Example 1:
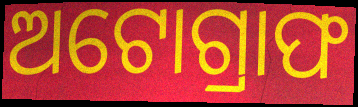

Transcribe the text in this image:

ଅଟୋଗ୍ରାଫ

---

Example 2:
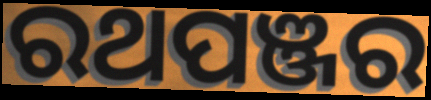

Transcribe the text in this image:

ରଥପଞ୍ଜର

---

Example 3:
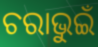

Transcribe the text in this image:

ଚରାଭୁଇଁ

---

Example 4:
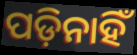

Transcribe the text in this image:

ପଡ଼ିନାହିଁ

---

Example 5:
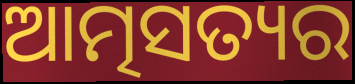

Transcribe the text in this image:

ଆତ୍ମସତ୍ୟର